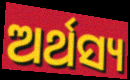
ଅର୍ଥସ୍ୟ